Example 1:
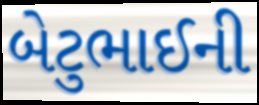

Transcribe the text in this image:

બેટુભાઈની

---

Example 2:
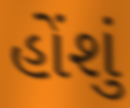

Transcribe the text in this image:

હોંશું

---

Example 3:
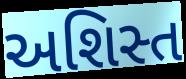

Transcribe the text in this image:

અશિસ્ત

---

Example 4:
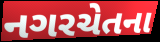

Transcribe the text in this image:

નગરચેતના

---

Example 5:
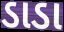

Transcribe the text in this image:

ડાડા